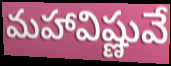
మహావిష్ణువే